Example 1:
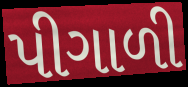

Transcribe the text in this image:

પીગાળી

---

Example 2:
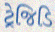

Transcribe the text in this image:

ટ્રેજિડિ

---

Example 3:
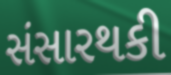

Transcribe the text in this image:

સંસારથકી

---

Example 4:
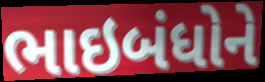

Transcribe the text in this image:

ભાઇબંધોને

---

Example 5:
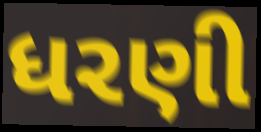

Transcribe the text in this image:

ધરણી